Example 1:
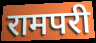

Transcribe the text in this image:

रामपरी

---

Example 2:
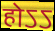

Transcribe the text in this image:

होऽऽ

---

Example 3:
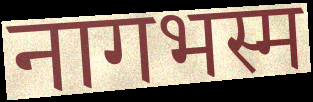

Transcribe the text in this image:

नागभस्म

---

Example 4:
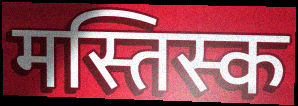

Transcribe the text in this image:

मस्तिस्क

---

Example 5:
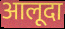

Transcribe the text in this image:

आलूदा